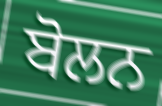
ਬੋਲਨ